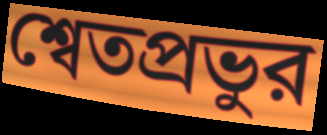
শ্বেতপ্রভুর